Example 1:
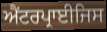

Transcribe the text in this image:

ਐਂਟਰਪ੍ਰਾਈਜਿਸ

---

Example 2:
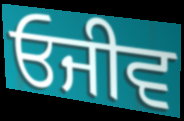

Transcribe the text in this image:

ਓਜੀਵ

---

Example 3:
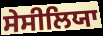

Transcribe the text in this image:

ਸੇਸੀਲਿਯਾ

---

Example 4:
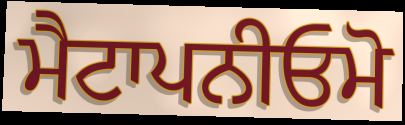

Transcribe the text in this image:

ਮੈਟਾਪਨੀਓਮੋ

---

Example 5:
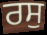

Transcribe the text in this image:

ਰਸੁ